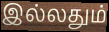
இல்லதும்